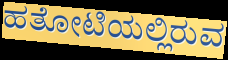
ಹತೋಟಿಯಲ್ಲಿರುವ